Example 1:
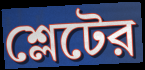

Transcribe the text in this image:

শ্লেটের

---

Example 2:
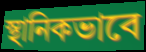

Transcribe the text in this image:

স্থানিকভাবে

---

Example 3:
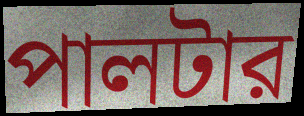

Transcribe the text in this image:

পালটার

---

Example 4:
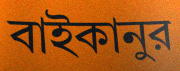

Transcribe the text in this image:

বাইকানুর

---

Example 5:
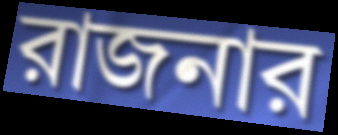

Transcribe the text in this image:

রাজনার